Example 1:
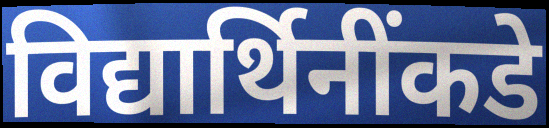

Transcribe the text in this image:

विद्यार्थिनींकडे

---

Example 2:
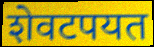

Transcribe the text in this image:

शेवटपयत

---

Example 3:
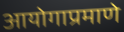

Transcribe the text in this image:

आयोगाप्रमाणे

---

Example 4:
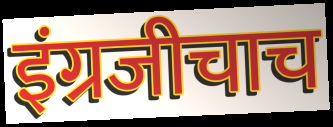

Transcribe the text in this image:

इंग्रजीचाच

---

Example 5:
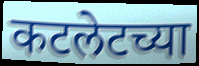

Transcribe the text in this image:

कटलेटच्या